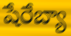
షేరేబ్యా